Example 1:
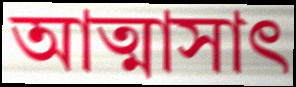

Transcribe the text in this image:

আত্মাসাৎ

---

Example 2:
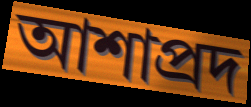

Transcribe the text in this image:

আশাপ্রদ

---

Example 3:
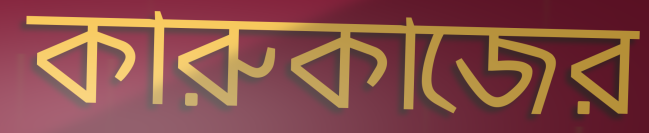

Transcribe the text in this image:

কারুকাজের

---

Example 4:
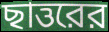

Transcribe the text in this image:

ছাত্তরের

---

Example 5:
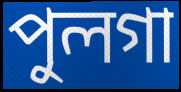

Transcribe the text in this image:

পুলগা